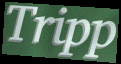
Tripp